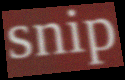
snip